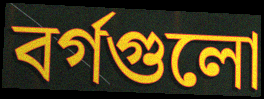
বর্গগুলো